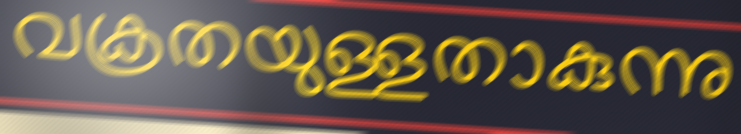
വക്രതയുള്ളതാകുന്നു